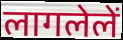
लागलेलें